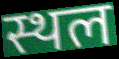
स्थल